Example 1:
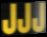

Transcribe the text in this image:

JJJ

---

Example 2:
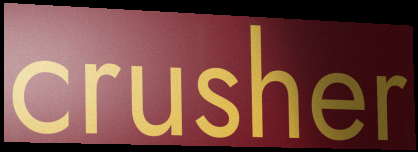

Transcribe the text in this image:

crusher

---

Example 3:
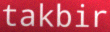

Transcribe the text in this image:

takbir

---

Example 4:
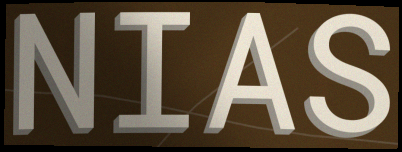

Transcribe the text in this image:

NIAS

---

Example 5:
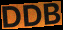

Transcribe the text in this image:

DDB